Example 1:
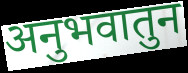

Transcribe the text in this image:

अनुभवातुन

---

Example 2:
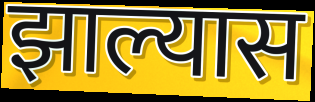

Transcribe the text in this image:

झाल्यास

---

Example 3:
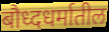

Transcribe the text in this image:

बौध्दधर्मातील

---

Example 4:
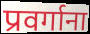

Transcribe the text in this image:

प्रवर्गाना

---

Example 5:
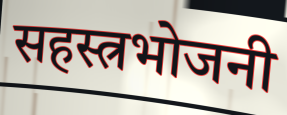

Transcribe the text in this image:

सहस्त्रभोजनी